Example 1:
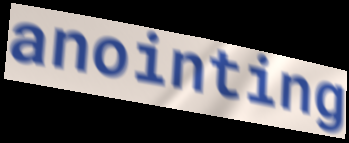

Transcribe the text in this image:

anointing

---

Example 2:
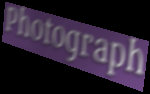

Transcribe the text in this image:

Photograph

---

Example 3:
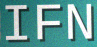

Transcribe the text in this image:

IFN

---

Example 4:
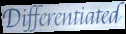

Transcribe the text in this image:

Differentiated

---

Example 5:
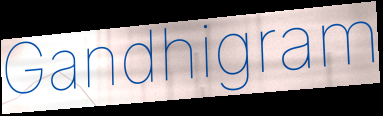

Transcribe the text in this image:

Gandhigram